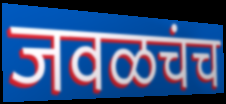
जवळचंच